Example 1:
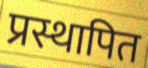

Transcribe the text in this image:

प्रस्थापित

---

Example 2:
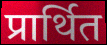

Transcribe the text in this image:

प्रार्थित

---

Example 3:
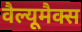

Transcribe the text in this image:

वैल्यूमैक्स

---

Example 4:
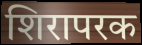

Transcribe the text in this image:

शिरापरक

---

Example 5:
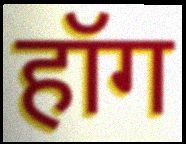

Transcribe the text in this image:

हॉग